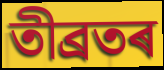
তীব্ৰতৰ